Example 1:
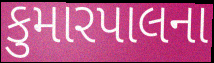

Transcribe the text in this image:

કુમારપાલના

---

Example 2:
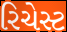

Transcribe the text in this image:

રિચેસ્ટ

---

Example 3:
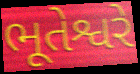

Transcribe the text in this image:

ભૂતેશ્વરે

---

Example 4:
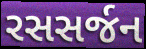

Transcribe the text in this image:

રસસર્જન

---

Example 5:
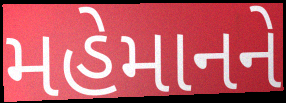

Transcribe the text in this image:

મહેમાનને